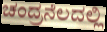
ಚಂದ್ರನೆಲದಲ್ಲಿ